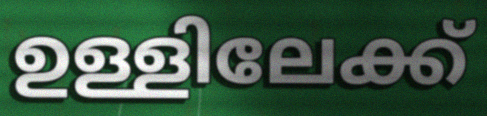
ഉള്ളിലേക്ക്